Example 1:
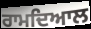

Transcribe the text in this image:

ਰਾਮਦਿਆਲ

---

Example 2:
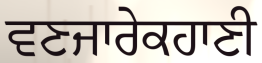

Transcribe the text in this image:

ਵਣਜਾਰੇਕਹਾਣੀ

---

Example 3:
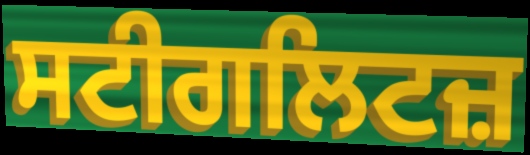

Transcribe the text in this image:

ਸਟੀਗਲਿਟਜ਼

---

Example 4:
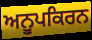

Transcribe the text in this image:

ਅਨੂਪਕਿਰਨ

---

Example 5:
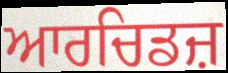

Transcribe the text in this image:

ਆਰਚਿਡਜ਼